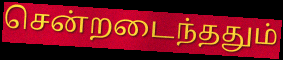
சென்றடைந்ததும்